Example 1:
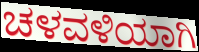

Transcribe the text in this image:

ಚಳವಳಿಯಾಗಿ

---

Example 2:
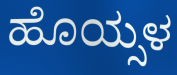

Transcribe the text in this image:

ಹೊಯ್ಸಳ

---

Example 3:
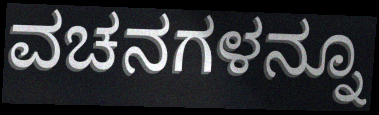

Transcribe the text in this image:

ವಚನಗಳನ್ನೂ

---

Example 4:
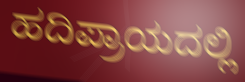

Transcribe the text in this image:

ಹದಿಪ್ರಾಯದಲ್ಲಿ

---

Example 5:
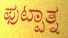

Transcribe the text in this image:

ಫುಟ್ಪಾತ್ನ